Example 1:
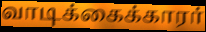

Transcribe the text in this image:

வாடிக்கைக்காரர்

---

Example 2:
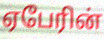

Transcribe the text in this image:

ஏபேரின்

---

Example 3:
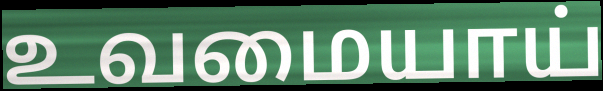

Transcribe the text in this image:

உவமையாய்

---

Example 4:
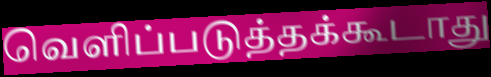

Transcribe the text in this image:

வெளிப்படுத்தக்கூடாது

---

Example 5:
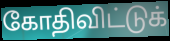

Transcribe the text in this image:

கோதிவிட்டுக்